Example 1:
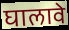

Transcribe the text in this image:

घालावे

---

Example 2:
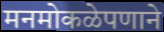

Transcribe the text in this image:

मनमोकळेपणाने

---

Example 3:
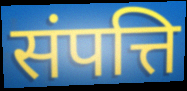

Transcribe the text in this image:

संपत्ति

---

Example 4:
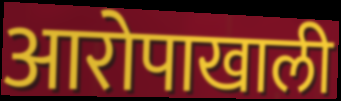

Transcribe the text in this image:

आरोपाखाली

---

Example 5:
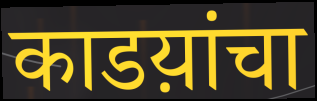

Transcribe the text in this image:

काडय़ांचा